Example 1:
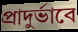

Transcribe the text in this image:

প্রাদুর্ভাবে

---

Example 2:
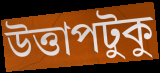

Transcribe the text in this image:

উত্তাপটুকু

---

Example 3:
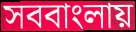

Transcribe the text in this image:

সববাংলায়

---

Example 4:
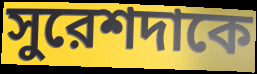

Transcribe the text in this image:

সুরেশদাকে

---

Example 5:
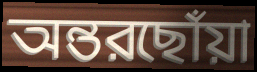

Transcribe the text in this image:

অন্তরছোঁয়া